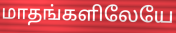
மாதங்களிலேயே